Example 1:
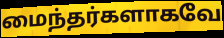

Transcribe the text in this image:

மைந்தர்களாகவே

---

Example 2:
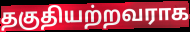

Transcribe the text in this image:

தகுதியற்றவராக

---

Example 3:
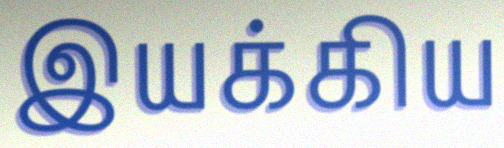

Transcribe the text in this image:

இயக்கிய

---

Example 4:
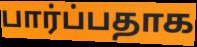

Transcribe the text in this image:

பார்ப்பதாக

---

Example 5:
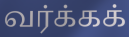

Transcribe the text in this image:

வர்க்கக்